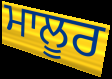
ਮਾਲੂਰ